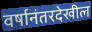
वर्षानंतरदेखील